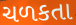
ચળકતા